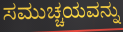
ಸಮುಚ್ಚಯವನ್ನು